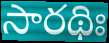
సారథిః